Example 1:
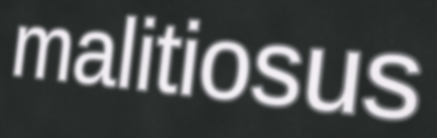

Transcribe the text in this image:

malitiosus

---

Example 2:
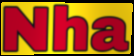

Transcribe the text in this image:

Nha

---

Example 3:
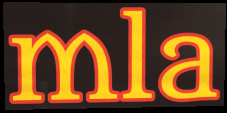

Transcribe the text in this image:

mla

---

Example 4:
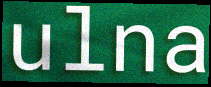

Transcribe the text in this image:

ulna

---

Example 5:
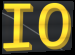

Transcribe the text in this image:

IO